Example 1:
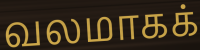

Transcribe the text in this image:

வலமாகக்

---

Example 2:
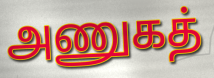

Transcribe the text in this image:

அணுகத்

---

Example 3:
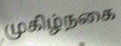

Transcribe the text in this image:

முகிழ்நகை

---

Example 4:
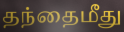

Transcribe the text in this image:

தந்தைமீது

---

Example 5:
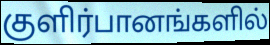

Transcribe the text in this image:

குளிர்பானங்களில்